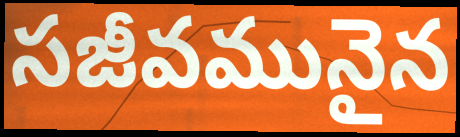
సజీవమునైన